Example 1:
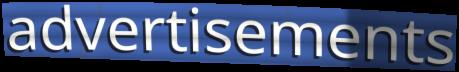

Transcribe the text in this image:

advertisements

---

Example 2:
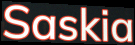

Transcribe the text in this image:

Saskia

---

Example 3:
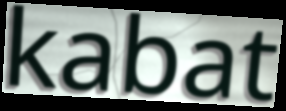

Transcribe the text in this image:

kabat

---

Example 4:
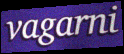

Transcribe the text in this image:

vagarni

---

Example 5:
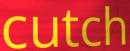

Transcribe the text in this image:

cutch